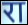
रा